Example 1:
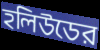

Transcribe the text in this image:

হলিউডের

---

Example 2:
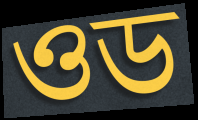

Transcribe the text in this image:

ওড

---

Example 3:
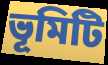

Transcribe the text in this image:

ভূমিটি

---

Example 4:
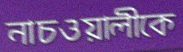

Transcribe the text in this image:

নাচওয়ালীকে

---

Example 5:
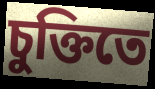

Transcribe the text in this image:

চুক্তিতে